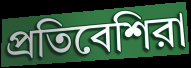
প্রতিবেশিরা